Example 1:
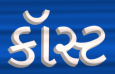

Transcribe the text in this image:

કૉસ્ટ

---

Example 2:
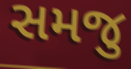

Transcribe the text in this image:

સમજુ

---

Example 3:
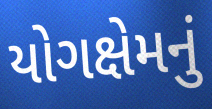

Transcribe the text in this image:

યોગક્ષેમનું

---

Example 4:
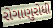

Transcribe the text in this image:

રોગાણુરોધી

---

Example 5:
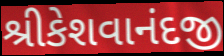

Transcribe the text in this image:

શ્રીકેશવાનંદજી